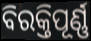
ବିରକ୍ତିପୂର୍ଣ୍ଣ